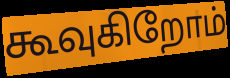
கூவுகிறோம்